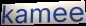
kamee